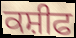
ਕਸ਼ੀਫ